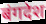
बंगदेश